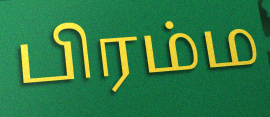
பிரம்ம